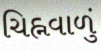
ચિહ્નવાળું